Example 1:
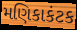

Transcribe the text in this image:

મણિકાકંટક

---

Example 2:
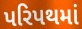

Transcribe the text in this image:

પરિપથમાં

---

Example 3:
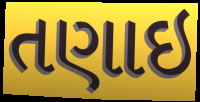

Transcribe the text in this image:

તણાઇ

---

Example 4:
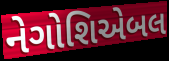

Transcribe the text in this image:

નેગોશિએબલ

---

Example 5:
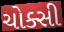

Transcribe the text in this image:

ચોક્સી